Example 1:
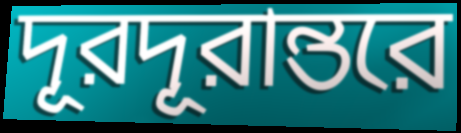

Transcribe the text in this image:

দূরদূরান্তরে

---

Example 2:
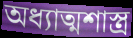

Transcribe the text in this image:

অধ্যাত্মশাস্ত্র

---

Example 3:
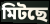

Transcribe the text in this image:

মিটছে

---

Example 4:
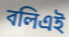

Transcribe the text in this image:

বলিএই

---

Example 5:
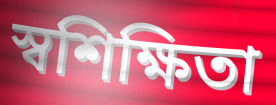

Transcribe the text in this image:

স্বশিক্ষিতা